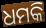
ଧମକି